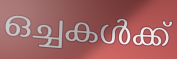
ഒച്ചകൾക്ക്